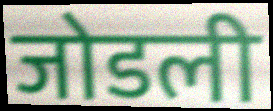
जोडली